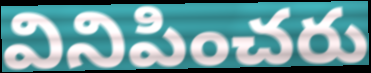
వినిపించరు